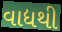
વાદ્યથી